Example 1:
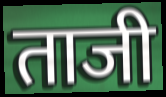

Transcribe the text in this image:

ताजी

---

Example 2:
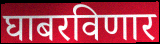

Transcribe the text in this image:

घाबरविणार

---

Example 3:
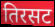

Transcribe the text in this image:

तिरसट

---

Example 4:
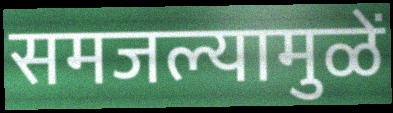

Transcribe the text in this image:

समजल्यामुळें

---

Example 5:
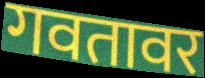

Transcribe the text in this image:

गवतावर